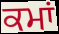
ਕਮਾਂ